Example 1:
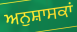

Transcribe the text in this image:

ਅਨੁਸ਼ਾਸਕਾਂ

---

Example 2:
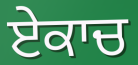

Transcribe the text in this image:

ਏਕਾਚ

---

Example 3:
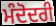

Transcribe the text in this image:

ਮੰਦੋਦਰੀ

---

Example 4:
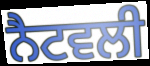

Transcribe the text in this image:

ਨੈਟਵਲੀ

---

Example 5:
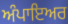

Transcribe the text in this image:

ਅੰਪਾਇਅਰ